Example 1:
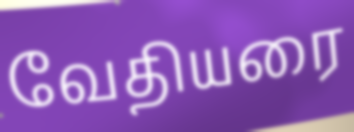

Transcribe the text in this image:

வேதியரை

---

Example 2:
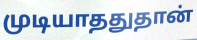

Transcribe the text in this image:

முடியாததுதான்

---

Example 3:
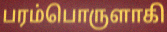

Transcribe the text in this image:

பரம்பொருளாகி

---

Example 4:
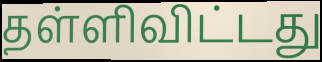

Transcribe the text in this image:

தள்ளிவிட்டது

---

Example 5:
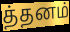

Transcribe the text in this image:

த்தனம்